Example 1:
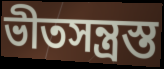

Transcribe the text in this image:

ভীতসন্ত্রস্ত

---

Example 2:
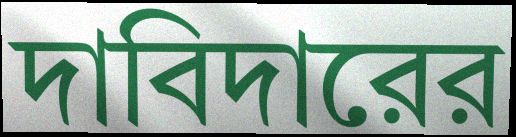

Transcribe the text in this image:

দাবিদারের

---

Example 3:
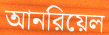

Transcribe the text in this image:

আনরিয়েল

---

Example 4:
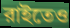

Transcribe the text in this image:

রাইতেও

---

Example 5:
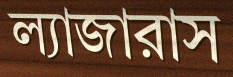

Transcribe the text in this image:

ল্যাজারাস